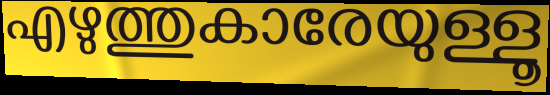
എഴുത്തുകാരേയുള്ളൂ